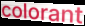
colorant